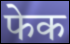
फेक